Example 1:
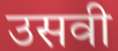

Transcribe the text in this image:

उसवी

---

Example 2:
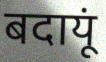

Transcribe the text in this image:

बदायूं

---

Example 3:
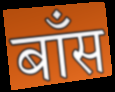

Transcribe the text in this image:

बाँस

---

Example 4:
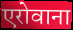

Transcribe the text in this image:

एरोवाना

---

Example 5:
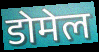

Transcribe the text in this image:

डोमेल